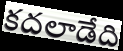
కదలాడేది